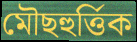
মৌছহুৰ্ত্তিক